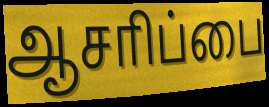
ஆசரிப்பை